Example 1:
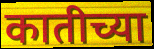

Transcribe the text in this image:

कातीच्या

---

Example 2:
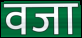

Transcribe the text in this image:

वजा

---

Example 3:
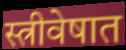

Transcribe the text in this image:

स्त्रीवेषात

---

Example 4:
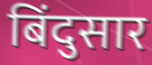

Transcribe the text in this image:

बिंदुसार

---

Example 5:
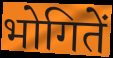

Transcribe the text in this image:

भोगितें